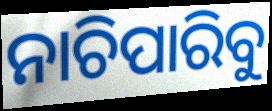
ନାଚିପାରିବୁ